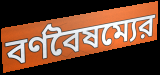
বর্ণবৈষম্যের